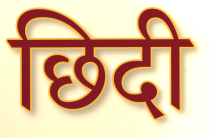
छिदी